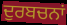
ਦੁਰਬਚਨਾਂ